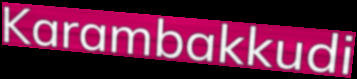
Karambakkudi